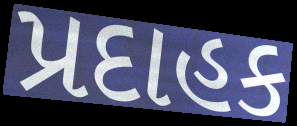
પ્રદાહક